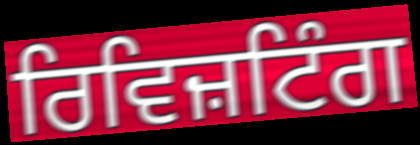
ਰਿਵਿਜ਼ਟਿੰਗ